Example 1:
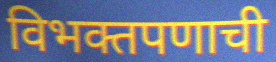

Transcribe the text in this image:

विभक्तपणाची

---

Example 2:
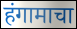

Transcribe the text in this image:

हंगामाचा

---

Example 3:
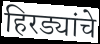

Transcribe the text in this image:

हिरड्यांचे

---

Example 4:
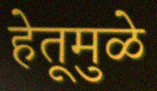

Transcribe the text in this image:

हेतूमुळे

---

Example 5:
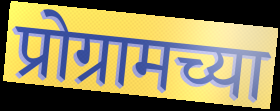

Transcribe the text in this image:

प्रोग्रामच्या